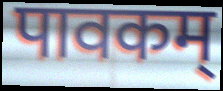
पावकम्